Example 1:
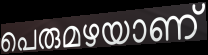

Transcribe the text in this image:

പെരുമഴയാണ്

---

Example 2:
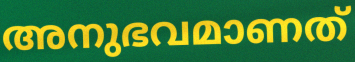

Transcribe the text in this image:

അനുഭവമാണത്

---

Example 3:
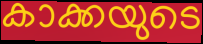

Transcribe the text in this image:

കാക്കയുടെ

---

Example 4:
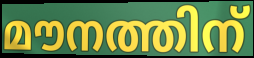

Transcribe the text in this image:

മൗനത്തിന്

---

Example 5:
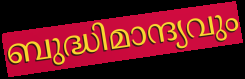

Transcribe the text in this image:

ബുദ്ധിമാന്ദ്യവും